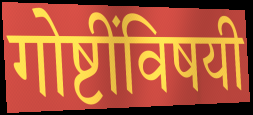
गोष्टींविषयी